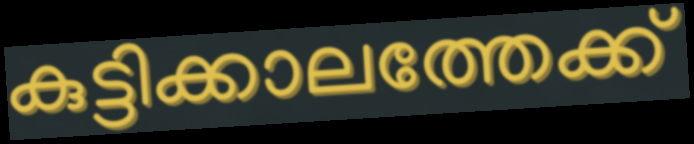
കുട്ടിക്കാലത്തേക്ക്